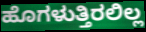
ಹೊಗಳುತ್ತಿರಲಿಲ್ಲ